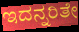
ಇದನ್ನರಿತೇ